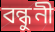
বন্ধুনী